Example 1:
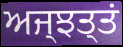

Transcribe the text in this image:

ਅਜ੍ਝਤ੍ਤਂ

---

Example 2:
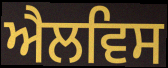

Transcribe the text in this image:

ਐਲਵਿਸ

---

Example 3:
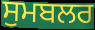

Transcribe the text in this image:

ਸੁਮਬਲਰ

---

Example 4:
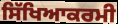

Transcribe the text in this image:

ਸਿੱਖਿਆਕਰਮੀ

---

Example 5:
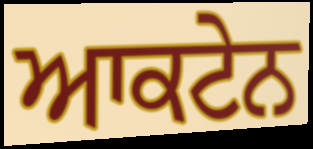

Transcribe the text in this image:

ਆਕਟੇਨ